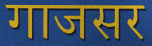
गाजसर